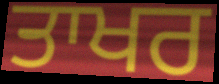
ਤਾਖਰ